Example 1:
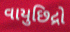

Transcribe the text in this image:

વાયુછિદ્રો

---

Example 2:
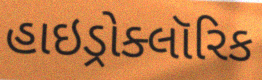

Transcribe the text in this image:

હાઇડ્રોક્લૉરિક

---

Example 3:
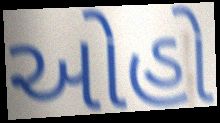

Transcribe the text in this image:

ઓહો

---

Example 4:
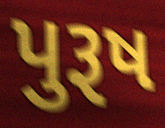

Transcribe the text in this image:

પુરૂષ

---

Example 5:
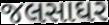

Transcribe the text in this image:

જલસાઘર